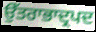
ਉੱਤਰਾਭਾਦ੍ਰਪਦ